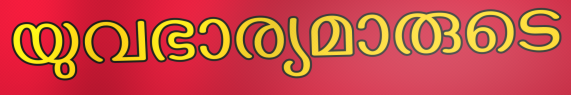
യുവഭാര്യമാരുടെ